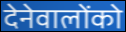
देनेवालोंको